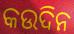
କଉଦିନ